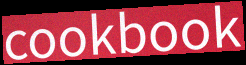
cookbook